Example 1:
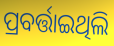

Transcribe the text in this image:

ପ୍ରବର୍ତ୍ତାଇଥିଲି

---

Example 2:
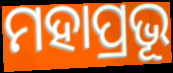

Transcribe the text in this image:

ମହାପ୍ରଭୂ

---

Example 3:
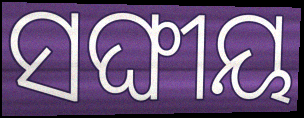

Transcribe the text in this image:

ସଙ୍ଘୀୟ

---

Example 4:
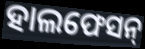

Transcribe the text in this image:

ହାଲଫେସନ୍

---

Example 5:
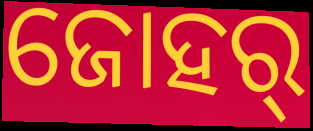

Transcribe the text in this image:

ଜୋହର୍